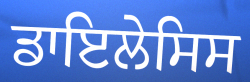
ਡਾਇਲੇਸਿਸ